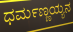
ಧರ್ಮಣ್ಣಯ್ಯನ